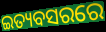
ଇତ୍ୟବସରରେ